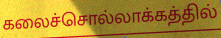
கலைச்சொல்லாக்கத்தில்